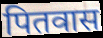
पितवास